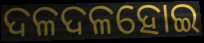
ଦଳଦଳହୋଇ